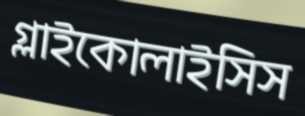
গ্লাইকোলাইসিস